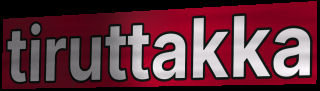
tiruttakka